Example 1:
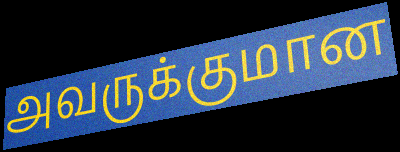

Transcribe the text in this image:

அவருக்குமான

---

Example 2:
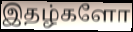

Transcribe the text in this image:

இதழ்களோ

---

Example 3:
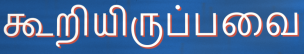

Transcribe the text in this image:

கூறியிருப்பவை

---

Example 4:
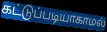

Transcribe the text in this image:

கட்டுப்படியாகாமல்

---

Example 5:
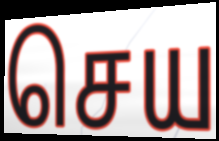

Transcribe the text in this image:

செய